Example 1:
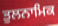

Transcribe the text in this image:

ਤੁਲਨਾਮਿਕ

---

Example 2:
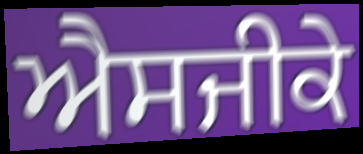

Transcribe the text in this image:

ਐਸਜੀਕੇ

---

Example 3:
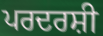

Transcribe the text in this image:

ਪਰਦਰਸ਼ੀ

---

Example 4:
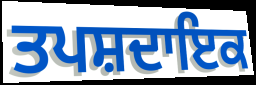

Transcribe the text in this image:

ਤਪਸ਼ਦਾਇਕ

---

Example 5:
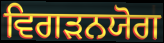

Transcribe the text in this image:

ਵਿਗੜਨਯੋਗ